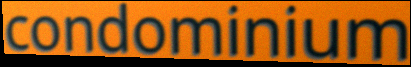
condominium